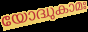
യോദ്ധുകാമഃ